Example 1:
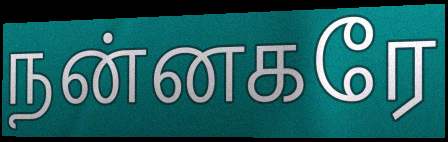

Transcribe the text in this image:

நன்னகரே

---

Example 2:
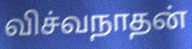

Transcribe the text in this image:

விச்வநாதன்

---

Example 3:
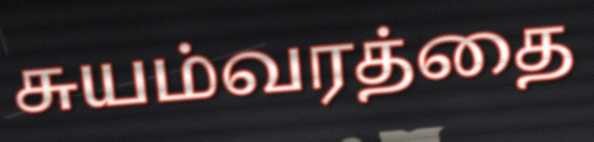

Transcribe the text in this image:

சுயம்வரத்தை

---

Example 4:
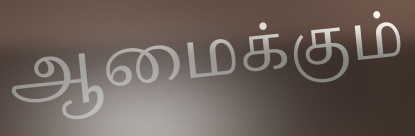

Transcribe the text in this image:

ஆமைக்கும்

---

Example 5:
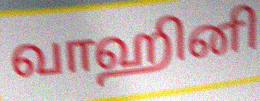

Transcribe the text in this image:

வாஹினி